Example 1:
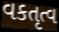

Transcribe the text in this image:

વકતૃત્વ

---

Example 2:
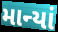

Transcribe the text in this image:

માન્યાં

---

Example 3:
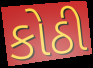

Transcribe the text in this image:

કોઠી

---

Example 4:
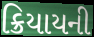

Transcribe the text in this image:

ક્રિયાયની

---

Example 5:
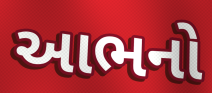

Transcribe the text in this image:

આભનો